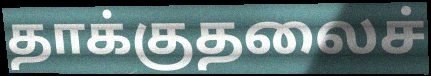
தாக்குதலைச்